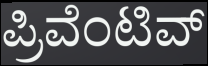
ಪ್ರಿವೆಂಟಿವ್